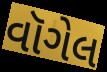
વૉગેલ